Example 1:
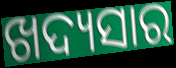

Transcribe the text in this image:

ଖଦ୍ୟସାର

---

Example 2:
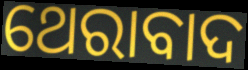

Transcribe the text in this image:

ଥେରାବାଦ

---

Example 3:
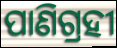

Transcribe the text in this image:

ପାଣିଗ୍ରହୀ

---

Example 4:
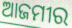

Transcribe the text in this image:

ଆଜମୀର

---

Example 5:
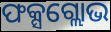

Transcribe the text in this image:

ଫକ୍ସଗ୍ଲୋଭ